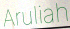
Aruliah